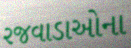
રજવાડાઓના